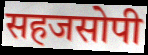
सहजसोपी